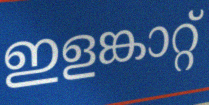
ഇളങ്കാറ്റ്